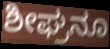
ಶೀಘ್ರನೂ